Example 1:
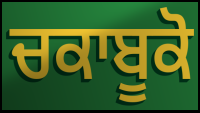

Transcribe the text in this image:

ਚਕਾਬੂਕੋ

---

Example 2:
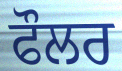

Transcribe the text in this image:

ਫੌਲਰ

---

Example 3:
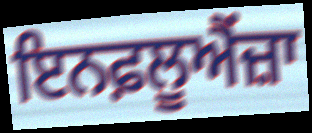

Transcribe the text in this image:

ਇਨਫ਼ਲੂਐਂਜ਼ਾ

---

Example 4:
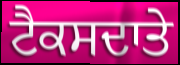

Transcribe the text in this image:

ਟੈਕਸਦਾਤੇ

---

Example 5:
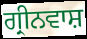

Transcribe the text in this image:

ਗ੍ਰੀਨਵਾਸ਼